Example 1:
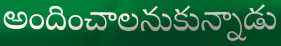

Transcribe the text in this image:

అందించాలనుకున్నాడు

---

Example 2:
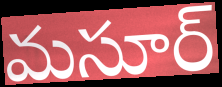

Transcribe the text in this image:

మసూర్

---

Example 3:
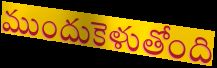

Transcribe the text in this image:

ముందుకెళుతోంది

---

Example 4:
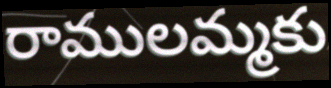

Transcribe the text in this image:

రాములమ్మకు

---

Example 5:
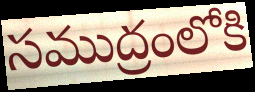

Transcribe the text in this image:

సముద్రంలోకి